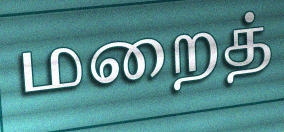
மறைத்